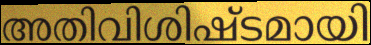
അതിവിശിഷ്ടമായി